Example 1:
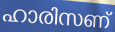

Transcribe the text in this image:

ഹാരിസണ്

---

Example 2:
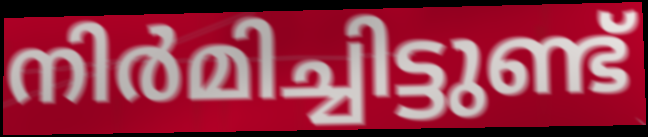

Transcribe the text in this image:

നിർമിച്ചിട്ടുണ്ട്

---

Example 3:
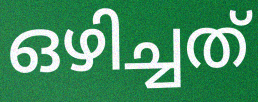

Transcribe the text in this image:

ഒഴിച്ചത്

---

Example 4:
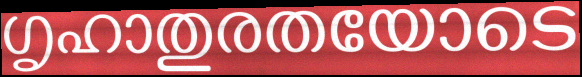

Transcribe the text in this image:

ഗൃഹാതുരതയോടെ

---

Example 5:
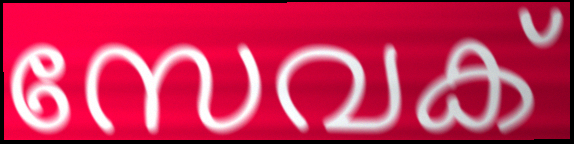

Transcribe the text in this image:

സേവക്